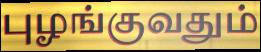
புழங்குவதும்